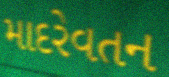
માદરેવતન